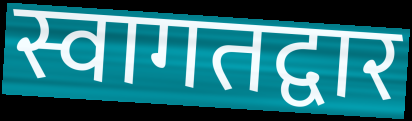
स्वागतद्वार